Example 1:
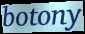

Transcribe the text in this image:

botony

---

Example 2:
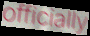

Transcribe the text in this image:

officially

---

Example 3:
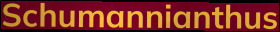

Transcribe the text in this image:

Schumannianthus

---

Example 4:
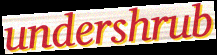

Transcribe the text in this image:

undershrub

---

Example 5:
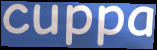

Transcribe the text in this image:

cuppa